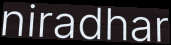
niradhar